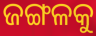
ଜଙ୍ଗଳକୁ